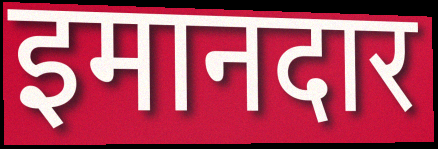
इमानदार